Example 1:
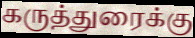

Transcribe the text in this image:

கருத்துரைக்கு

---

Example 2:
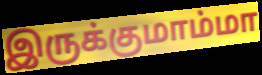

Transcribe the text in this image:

இருக்குமாம்மா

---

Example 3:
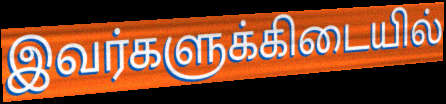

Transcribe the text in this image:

இவர்களுக்கிடையில்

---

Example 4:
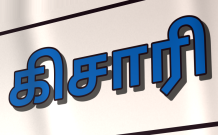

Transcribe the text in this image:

கிசாரி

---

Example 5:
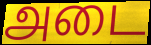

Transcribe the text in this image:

அடை